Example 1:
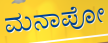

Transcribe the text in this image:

ಮನಾಪೋ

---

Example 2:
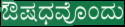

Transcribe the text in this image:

ಔಷಧವೊಂದು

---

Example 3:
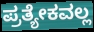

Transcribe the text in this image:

ಪ್ರತ್ಯೇಕವಲ್ಲ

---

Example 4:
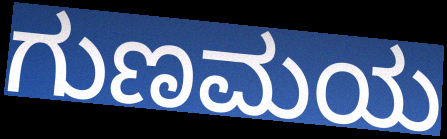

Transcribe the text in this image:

ಗುಣಮಯ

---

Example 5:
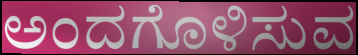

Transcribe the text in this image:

ಅಂದಗೊಳಿಸುವ